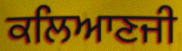
ਕਲਿਆਣਜੀ